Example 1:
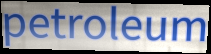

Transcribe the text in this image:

petroleum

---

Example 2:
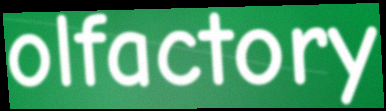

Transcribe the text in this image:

olfactory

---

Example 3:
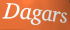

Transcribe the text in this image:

Dagars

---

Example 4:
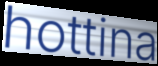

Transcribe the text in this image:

hottina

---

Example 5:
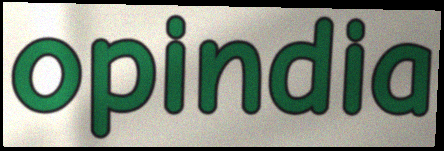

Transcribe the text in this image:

opindia